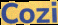
Cozi